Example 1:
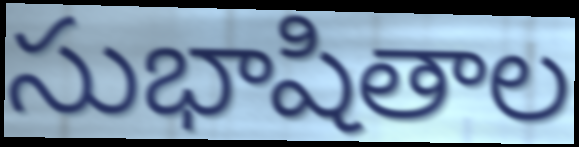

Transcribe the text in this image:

సుభాషితాల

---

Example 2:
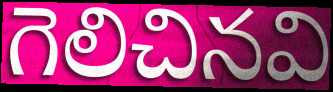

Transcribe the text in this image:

గెలిచినవి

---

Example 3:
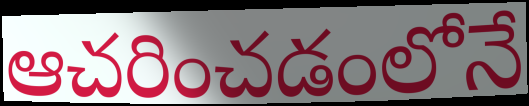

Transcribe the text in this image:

ఆచరించడంలోనే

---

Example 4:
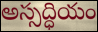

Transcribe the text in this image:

అస్సద్ధియం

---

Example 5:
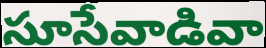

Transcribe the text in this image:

సూసేవాడివా